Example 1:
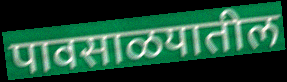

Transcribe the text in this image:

पावसाळयातील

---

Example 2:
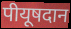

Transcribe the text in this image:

पीयूषदान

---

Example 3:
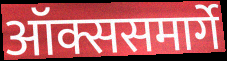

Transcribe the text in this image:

ऑक्ससमार्गे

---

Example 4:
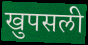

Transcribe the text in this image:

खुपसली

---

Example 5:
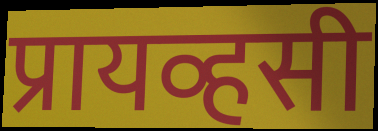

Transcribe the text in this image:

प्रायव्हसी